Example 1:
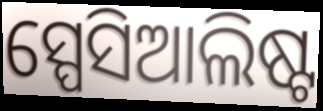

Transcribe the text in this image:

ସ୍ପେସିଆଲିଷ୍ଟ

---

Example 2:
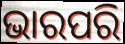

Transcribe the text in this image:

ଭାରପରି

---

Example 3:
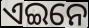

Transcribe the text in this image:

ଏଇନେ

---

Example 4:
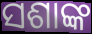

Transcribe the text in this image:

ସଶାଙ୍କ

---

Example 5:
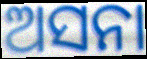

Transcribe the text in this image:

ଅସନା